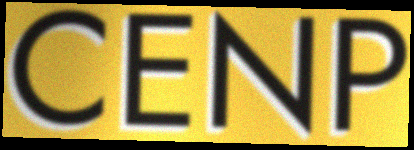
CENP